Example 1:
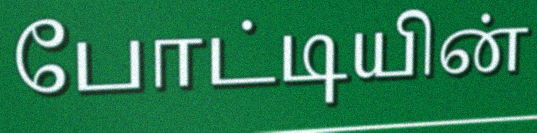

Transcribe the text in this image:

போட்டியின்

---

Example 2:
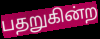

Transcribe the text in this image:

பதறுகின்ற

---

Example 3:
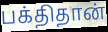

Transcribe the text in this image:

பக்திதான்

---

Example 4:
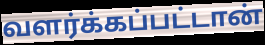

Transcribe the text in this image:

வளர்க்கப்பட்டான்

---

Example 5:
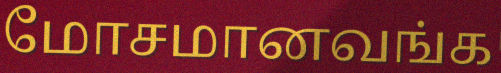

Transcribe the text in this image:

மோசமானவங்க